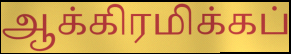
ஆக்கிரமிக்கப்